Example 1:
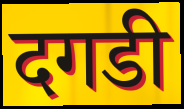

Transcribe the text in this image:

दगडी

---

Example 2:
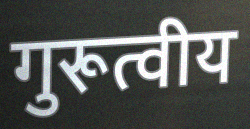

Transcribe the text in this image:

गुरूत्वीय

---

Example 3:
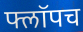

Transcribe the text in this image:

फ्लॉपच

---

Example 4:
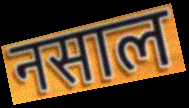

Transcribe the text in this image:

नसाल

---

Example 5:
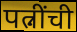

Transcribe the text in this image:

पत्नींची